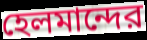
হেলমান্দের